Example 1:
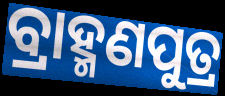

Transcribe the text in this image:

ବ୍ରାହ୍ମଣପୁତ୍ର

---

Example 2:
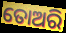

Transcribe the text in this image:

ତୋଅରି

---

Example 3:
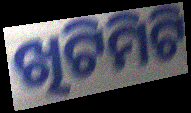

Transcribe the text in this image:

ଖିଟିମିଟି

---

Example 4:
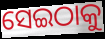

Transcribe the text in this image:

ସେଇଠାକୁ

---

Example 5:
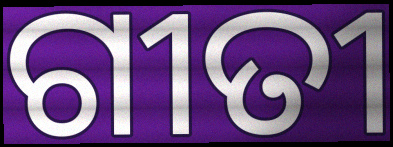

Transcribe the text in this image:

ଗୀତୀ